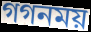
গগনময়